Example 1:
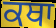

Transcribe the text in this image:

ਕਥਾ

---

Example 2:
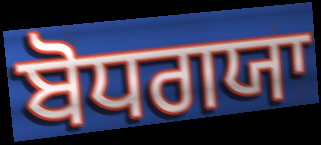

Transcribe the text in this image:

ਬੋਧਗਯਾ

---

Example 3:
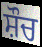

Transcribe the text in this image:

ਸ਼ੌਚ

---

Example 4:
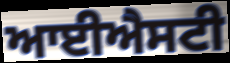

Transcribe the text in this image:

ਆਈਐਸਟੀ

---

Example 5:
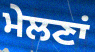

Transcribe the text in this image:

ਮੇਲਣਾਂ